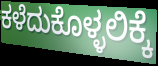
ಕಳೆದುಕೊಳ್ಳಲಿಕ್ಕೆ